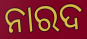
ନାରଦ